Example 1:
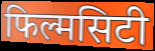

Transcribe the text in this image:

फिल्मसिटी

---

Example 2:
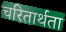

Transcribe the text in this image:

चरितार्थता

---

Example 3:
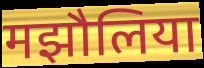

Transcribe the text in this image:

मझौलिया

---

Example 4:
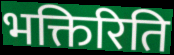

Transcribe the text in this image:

भक्तिरिति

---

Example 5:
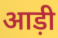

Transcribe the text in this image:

आड़ी